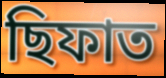
ছিফাত